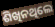
ଶିଖିନଥିଲେ